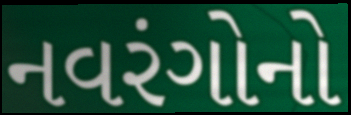
નવરંગોનો